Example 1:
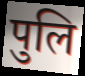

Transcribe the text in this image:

पुलि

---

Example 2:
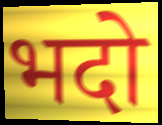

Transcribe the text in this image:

भदो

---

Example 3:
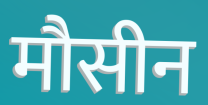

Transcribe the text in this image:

मौसीन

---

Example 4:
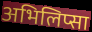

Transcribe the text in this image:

अभिलिप्सा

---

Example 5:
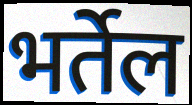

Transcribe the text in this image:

भर्तेल